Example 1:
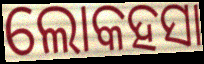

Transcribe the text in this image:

ଲୋକହସା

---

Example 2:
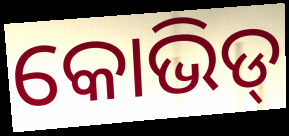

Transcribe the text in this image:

କୋଭିଡ୍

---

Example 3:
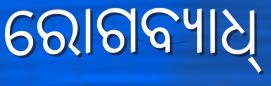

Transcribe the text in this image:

ରୋଗବ୍ୟାଧ୍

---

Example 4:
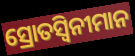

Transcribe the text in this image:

ସ୍ରୋତସ୍ୱିନୀମାନ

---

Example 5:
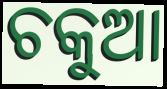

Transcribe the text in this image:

ଚକୁଆ